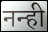
नन्ही